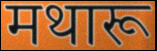
मथारू